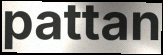
pattan